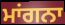
ਮਾਂਗਨਾ